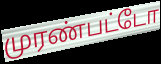
முரண்பட்டோ